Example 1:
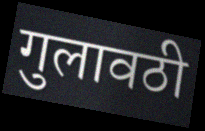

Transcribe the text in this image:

गुलावठी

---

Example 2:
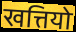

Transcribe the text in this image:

खत्तियो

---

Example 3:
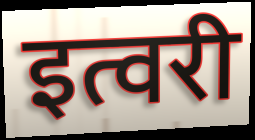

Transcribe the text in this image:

इत्वरी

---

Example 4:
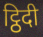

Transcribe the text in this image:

ट्ठिदी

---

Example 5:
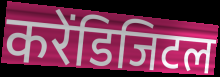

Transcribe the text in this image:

करेंडिजिटल